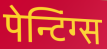
पेन्टिंग्स